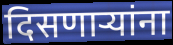
दिसणाऱ्यांना